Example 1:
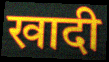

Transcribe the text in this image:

खादी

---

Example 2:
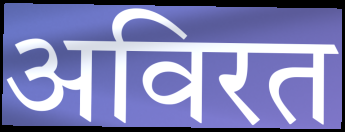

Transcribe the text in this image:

अविरत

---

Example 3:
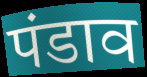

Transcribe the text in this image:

पंडाव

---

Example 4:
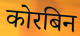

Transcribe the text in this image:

कोरबिन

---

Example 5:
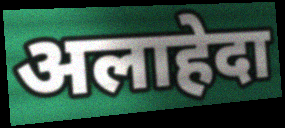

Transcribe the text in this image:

अलाहेदा